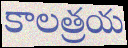
కాలత్రయ